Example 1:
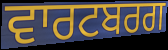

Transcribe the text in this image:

ਵਾਰਟਬਰਗ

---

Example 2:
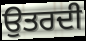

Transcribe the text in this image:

ਉਤਰਦੀ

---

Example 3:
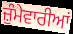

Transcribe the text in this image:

ਜ਼ੁੰਮੇਵਾਰੀਆਂ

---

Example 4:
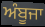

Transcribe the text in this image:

ਅੰਬੂਜਾ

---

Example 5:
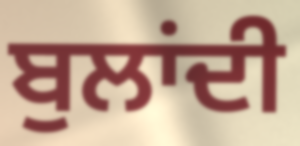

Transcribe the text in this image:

ਬੁਲਾਂਦੀ